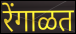
रेंगाळत